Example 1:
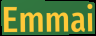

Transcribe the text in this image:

Emmai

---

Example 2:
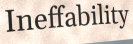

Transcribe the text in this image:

Ineffability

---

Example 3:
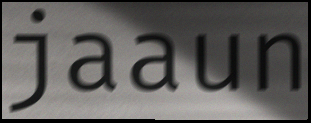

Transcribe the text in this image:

jaaun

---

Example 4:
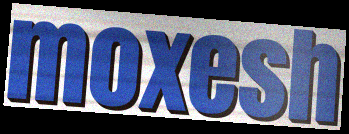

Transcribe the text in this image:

moxesh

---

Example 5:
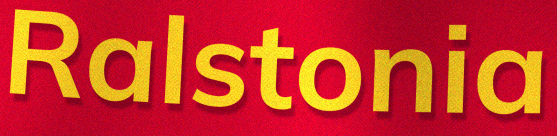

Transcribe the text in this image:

Ralstonia